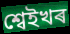
শ্বেইখৰ